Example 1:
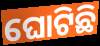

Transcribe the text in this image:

ଘୋଟିଛି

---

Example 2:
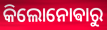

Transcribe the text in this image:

କିଲୋନୋଵାରୁ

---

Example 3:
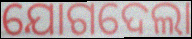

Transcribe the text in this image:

ଯୋଗଦେଲା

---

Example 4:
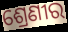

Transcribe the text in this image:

ଶ୍ରେଣୀର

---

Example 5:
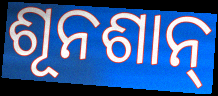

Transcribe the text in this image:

ଶୂନଶାନ୍